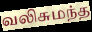
வலிசுமந்த